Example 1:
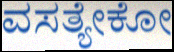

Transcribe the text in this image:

ವಸತ್ಯೇಕೋ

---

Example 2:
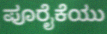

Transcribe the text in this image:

ಪೂರೈಕೆಯು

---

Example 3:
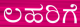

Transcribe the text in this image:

ಲಹರಿಗೆ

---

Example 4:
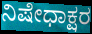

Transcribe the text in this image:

ನಿಷೇಧಾಕ್ಷರ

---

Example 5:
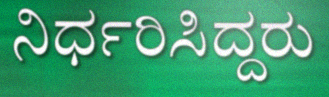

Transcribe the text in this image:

ನಿರ್ಧರಿಸಿದ್ದರು